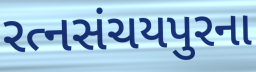
રત્નસંચયપુરના